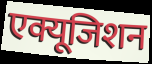
एक्यूजिशन